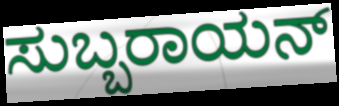
ಸುಬ್ಬರಾಯನ್